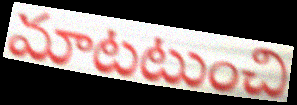
మాటటుంచి